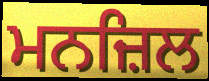
ਮਨਜ਼ਿਲ